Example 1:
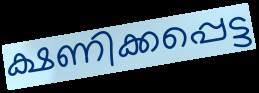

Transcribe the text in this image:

ക്ഷണിക്കപ്പെട്ട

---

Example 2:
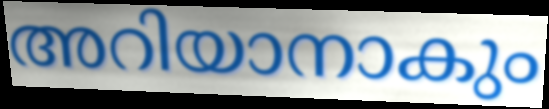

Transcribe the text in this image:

അറിയാനാകും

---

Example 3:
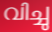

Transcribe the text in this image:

വിച്ചു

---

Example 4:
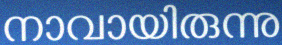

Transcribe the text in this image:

നാവായിരുന്നു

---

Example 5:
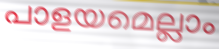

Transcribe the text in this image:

പാളയമെല്ലാം